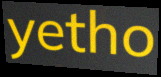
yetho